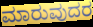
ಮಾರುವುದರ